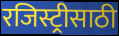
रजिस्ट्रीसाठी